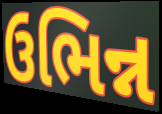
ઉભિન્ન